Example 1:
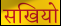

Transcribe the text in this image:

सखियो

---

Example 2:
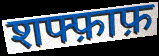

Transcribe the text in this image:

शफ्फ़ाफ़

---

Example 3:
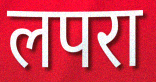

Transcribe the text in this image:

लपरा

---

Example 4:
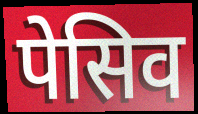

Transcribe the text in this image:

पेसिव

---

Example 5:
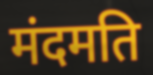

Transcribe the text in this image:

मंदमति